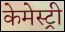
केमेस्ट्री